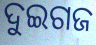
ଦୁଇଗଜ